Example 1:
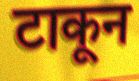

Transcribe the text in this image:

टाकून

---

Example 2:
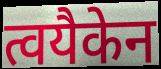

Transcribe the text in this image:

त्वयैकेन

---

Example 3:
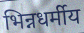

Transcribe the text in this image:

भिन्नधर्मीय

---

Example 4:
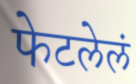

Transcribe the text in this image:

फेटलेलं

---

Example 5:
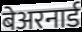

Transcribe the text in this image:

बेअरनार्ड